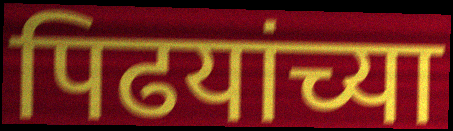
पिढयांच्या